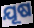
ଯୂଷ